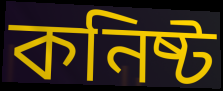
কনিষ্ট